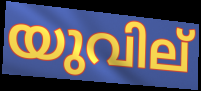
യുവില്